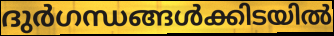
ദുർഗന്ധങ്ങൾക്കിടയിൽ